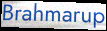
Brahmarup